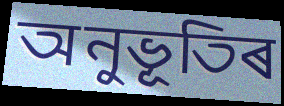
অনুভূতিৰ